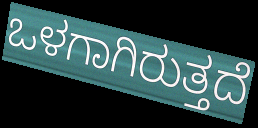
ಒಳಗಾಗಿರುತ್ತದೆ